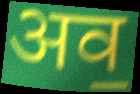
अव॒